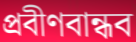
প্রবীণবান্ধব